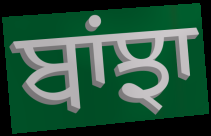
ਬਾਂਝਾ